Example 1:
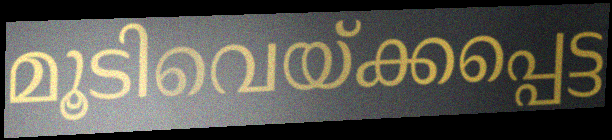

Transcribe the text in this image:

മൂടിവെയ്ക്കപ്പെട്ട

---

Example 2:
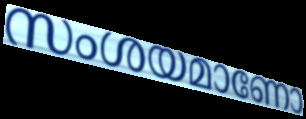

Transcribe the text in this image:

സംശയമാണോ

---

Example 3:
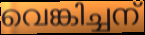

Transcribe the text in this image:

വെങ്കിച്ചന്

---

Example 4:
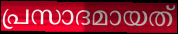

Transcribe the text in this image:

പ്രസാദമായത്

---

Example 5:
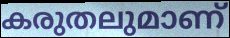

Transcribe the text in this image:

കരുതലുമാണ്